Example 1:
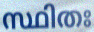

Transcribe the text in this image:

സ്ഥിതഃ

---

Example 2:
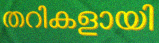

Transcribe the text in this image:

തറികളായി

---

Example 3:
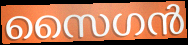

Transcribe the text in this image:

സൈഗൻ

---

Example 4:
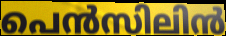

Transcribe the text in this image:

പെൻസിലിൻ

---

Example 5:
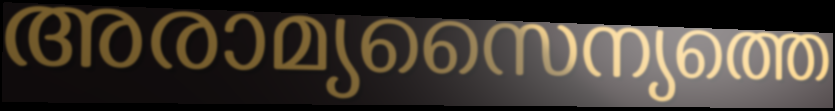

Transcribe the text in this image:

അരാമ്യസൈന്യത്തെ